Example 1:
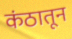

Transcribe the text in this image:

कंठातून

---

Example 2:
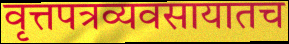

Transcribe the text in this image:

वृत्तपत्रव्यवसायातच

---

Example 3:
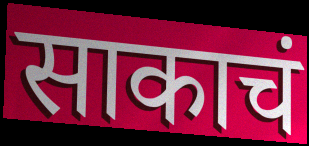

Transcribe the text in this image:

साकाचं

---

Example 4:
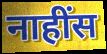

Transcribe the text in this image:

नाहींस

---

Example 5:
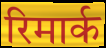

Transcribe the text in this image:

रिमार्क